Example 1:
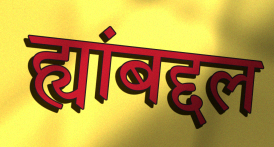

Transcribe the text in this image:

ह्यांबद्दल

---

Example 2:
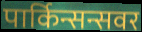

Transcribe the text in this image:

पार्किन्सन्सवर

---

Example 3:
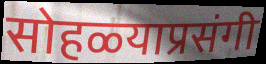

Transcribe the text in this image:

सोहळ्याप्रसंगी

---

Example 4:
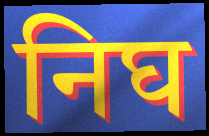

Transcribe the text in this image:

निघ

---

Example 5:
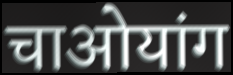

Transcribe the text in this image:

चाओयांग